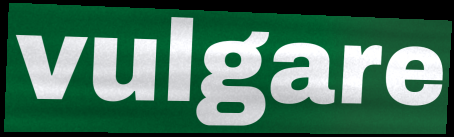
vulgare